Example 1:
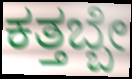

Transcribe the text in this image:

ಕತ್ತಬ್ಬೇ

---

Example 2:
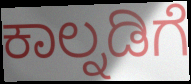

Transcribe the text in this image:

ಕಾಲ್ನಡಿಗೆ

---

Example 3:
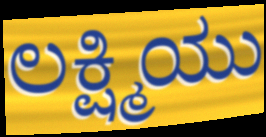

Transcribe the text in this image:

ಲಕ್ಷ್ಮಿಯು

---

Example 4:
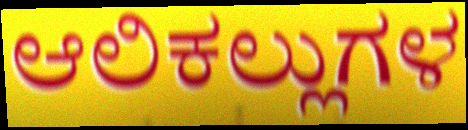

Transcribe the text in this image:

ಆಲಿಕಲ್ಲುಗಳ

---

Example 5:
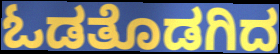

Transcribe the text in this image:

ಓಡತೊಡಗಿದ